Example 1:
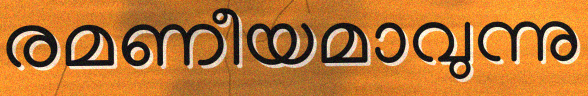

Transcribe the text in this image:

രമണീയമാവുന്നു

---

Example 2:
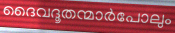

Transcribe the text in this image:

ദൈവദൂതന്മാർപോലും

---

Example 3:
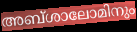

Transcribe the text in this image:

അബ്ശാലോമിനും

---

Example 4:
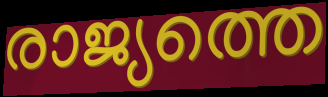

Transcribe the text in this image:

രാജ്യത്തെ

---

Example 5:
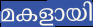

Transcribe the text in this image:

മകളായി